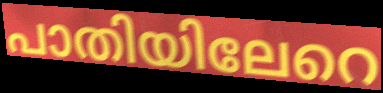
പാതിയിലേറെ